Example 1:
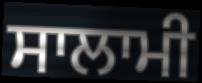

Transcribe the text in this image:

ਸਾਲਾਮੀ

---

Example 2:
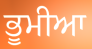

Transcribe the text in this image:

ਭੂਮੀਆ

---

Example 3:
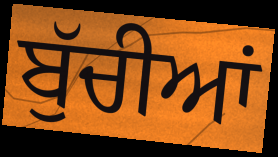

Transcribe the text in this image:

ਬੁੱਚੀਆਂ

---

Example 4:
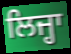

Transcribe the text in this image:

ਲਿਜ੍ਹਾ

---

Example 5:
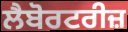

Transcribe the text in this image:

ਲੈਬੋਰਟਰੀਜ਼